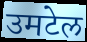
उमटेल